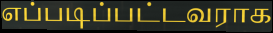
எப்படிப்பட்டவராக